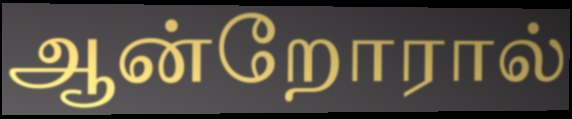
ஆன்றோரால்